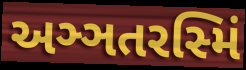
અઞ્ઞતરસ્મિં